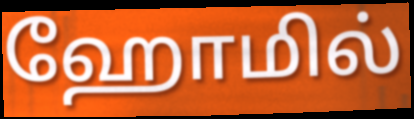
ஹோமில்